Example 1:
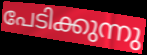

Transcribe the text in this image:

പേടിക്കുന്നു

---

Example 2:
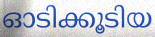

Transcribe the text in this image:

ഓടിക്കൂടിയ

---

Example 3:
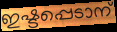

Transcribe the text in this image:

ഇഷ്ടപ്പെടാന്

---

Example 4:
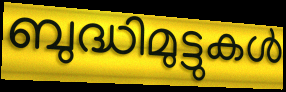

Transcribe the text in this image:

ബുദ്ധിമുട്ടുകൾ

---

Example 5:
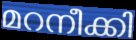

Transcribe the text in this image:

മറനീക്കി